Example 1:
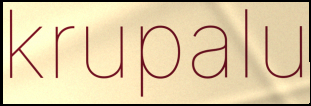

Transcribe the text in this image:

krupalu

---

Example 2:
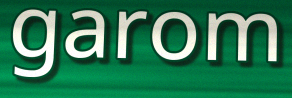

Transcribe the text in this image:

garom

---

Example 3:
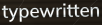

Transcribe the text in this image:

typewritten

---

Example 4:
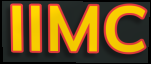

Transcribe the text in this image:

IIMC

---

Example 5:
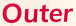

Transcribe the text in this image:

Outer